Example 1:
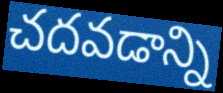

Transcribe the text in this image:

చదవడాన్ని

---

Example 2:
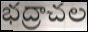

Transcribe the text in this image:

భద్రాచల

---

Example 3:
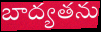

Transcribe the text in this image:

బాద్యతను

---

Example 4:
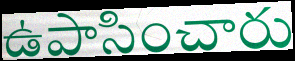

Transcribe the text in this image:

ఉపాసించారు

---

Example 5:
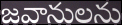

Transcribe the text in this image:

జవానులను